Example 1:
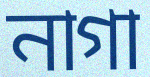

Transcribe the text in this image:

নাগা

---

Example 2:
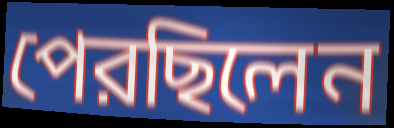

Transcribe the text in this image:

পেরছিলেন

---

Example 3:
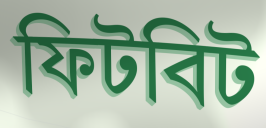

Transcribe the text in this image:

ফিটবিট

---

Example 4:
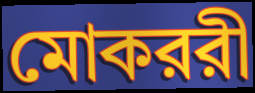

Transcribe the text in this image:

মোকররী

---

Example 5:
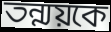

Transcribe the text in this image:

তন্ময়কে